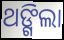
ଥଙ୍ଗିଲା